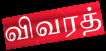
விவரத்